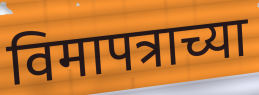
विमापत्राच्या